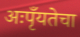
अःपृँयतेचा